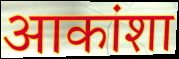
आकांशा